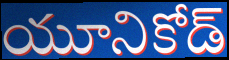
యూనికోడ్